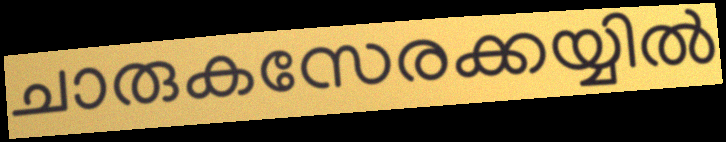
ചാരുകസേരക്കയ്യിൽ